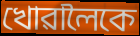
খোৱালৈকে